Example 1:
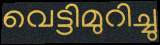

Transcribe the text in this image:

വെട്ടിമുറിച്ചു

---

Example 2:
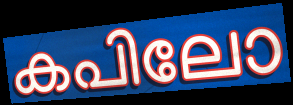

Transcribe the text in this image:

കപിലോ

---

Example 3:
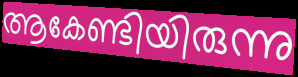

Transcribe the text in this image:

ആകേണ്ടിയിരുന്നു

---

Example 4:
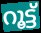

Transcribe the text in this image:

റൂട്ട്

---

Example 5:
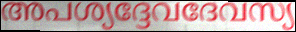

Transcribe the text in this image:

അപശ്യദ്ദേവദേവസ്യ